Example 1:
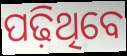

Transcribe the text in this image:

ପଢ଼ିଥିବେ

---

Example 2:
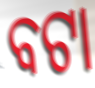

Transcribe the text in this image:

ବଟା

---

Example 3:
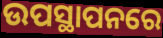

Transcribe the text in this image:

ଉପସ୍ଥାପନରେ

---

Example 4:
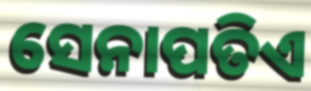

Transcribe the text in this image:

ସେନାପତିଏ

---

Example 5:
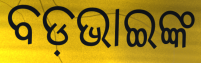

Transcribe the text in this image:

ବଡ଼ଭାଇଙ୍କ